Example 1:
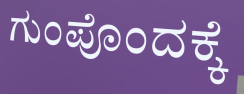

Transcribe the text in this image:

ಗುಂಪೊಂದಕ್ಕೆ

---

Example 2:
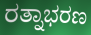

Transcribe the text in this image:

ರತ್ನಾಭರಣ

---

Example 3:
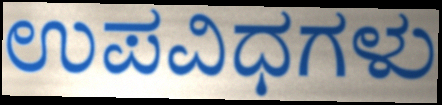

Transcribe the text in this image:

ಉಪವಿಧಗಳು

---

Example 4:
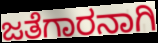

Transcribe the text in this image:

ಜತೆಗಾರನಾಗಿ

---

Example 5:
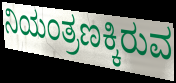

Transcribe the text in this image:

ನಿಯಂತ್ರಣಕ್ಕಿರುವ